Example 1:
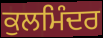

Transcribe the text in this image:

ਕੁਲਮਿੰਦਰ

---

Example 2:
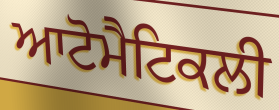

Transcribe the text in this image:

ਆਟੋਮੈਟਿਕਲੀ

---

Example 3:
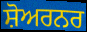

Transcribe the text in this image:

ਸ਼ੋਅਰਨਰ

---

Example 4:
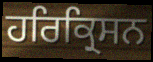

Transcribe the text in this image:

ਹਰਿਕ੍ਰਿਸਨ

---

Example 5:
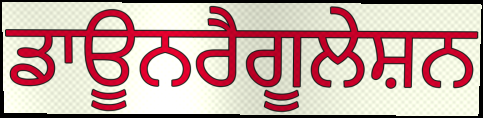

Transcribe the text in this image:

ਡਾਊਨਰੈਗੂਲੇਸ਼ਨ